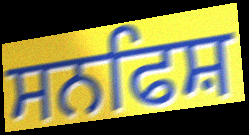
ਸਨਫਿਸ਼